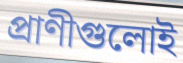
প্রাণীগুলোই